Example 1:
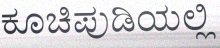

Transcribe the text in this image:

ಕೂಚಿಪುಡಿಯಲ್ಲಿ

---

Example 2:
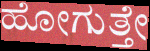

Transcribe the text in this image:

ಹೋಗುತ್ತೇ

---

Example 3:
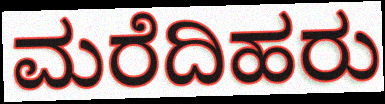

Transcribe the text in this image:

ಮರೆದಿಹರು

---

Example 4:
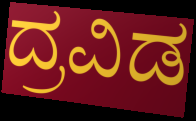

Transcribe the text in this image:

ದ್ರವಿಡ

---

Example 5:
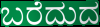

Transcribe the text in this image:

ಬರೆದುದ